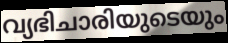
വ്യഭിചാരിയുടെയും